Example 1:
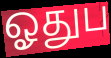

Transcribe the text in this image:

ஓதுப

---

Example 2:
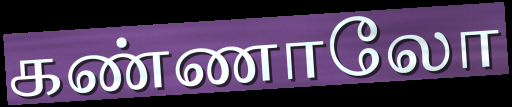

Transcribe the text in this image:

கண்ணாலோ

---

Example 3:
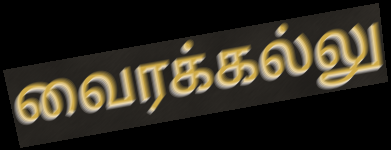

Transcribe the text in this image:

வைரக்கல்லு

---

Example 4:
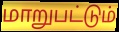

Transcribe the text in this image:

மாறுபட்டும்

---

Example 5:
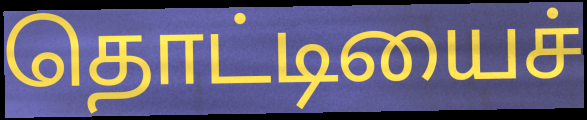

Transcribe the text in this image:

தொட்டியைச்